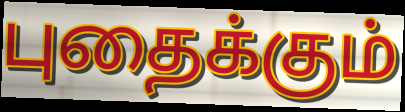
புதைக்கும்